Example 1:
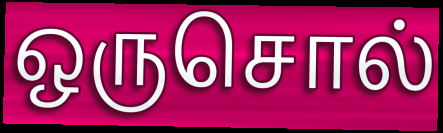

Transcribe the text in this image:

ஒருசொல்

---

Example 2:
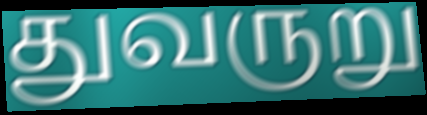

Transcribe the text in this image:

துவருறு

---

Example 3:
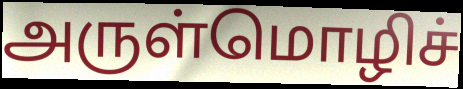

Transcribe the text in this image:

அருள்மொழிச்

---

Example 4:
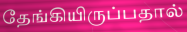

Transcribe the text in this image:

தேங்கியிருப்பதால்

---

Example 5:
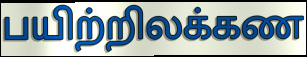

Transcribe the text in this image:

பயிற்றிலக்கண